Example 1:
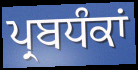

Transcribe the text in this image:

ਪ੍ਰਬਧੰਕਾਂ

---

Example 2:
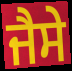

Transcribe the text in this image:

ਜੈਸੇ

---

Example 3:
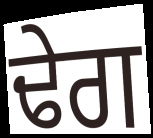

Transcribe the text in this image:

ਢੇਗ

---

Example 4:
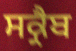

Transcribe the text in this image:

ਸਕ੍ਰੈਬ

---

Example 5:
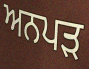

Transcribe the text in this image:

ਅਨਪੜ